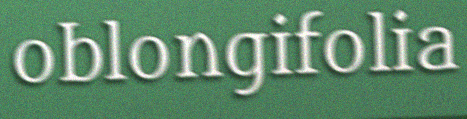
oblongifolia